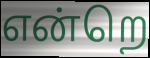
என்றெ